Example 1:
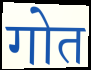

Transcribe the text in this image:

गोत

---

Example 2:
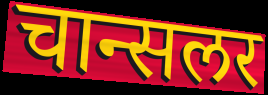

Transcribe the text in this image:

चान्सलर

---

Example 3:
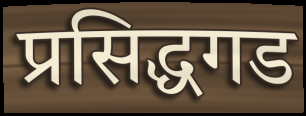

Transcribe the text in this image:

प्रसिद्धगड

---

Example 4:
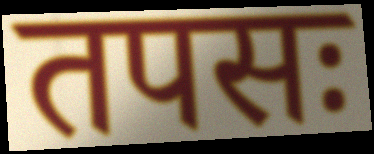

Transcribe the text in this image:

तपसः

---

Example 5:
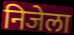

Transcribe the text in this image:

निजेला